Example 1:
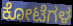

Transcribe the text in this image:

ಕೋಟೆಗಳ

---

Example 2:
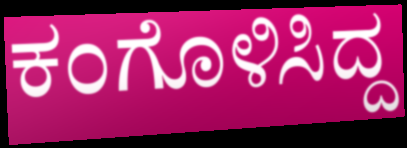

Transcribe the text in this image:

ಕಂಗೊಳಿಸಿದ್ದ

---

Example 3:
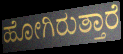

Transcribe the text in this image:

ಹೋಗಿರುತ್ತಾರೆ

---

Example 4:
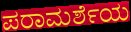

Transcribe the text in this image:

ಪರಾಮರ್ಶೆಯ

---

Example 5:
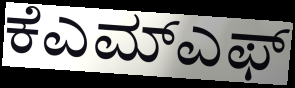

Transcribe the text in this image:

ಕೆಎಮ್ಎಫ್